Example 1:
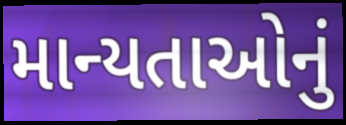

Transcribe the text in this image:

માન્યતાઓનું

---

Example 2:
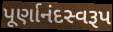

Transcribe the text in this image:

પૂર્ણાનંદસ્વરૂપ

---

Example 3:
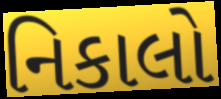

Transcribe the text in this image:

નિકાલો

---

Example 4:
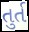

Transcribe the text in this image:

તુર્ત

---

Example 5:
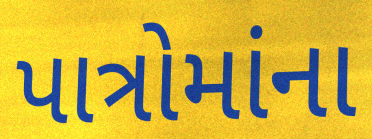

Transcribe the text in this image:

પાત્રોમાંના